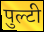
पुल्टी